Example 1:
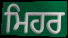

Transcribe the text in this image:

ਮਿਹਰ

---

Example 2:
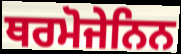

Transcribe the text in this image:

ਥਰਮੋਜੇਨਿਨ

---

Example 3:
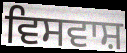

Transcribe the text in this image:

ਵਿਸਵਾਸ਼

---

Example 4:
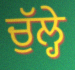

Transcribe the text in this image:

ਚੁੱਲ੍ਹੇ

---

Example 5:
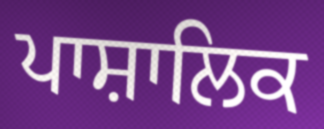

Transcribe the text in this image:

ਪਾਸ਼ਾਲਿਕ